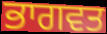
ਭਾਗਵਤ